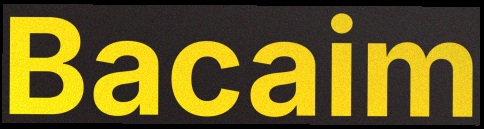
Bacaim